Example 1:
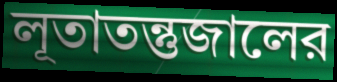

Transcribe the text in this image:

লূতাতন্তুজালের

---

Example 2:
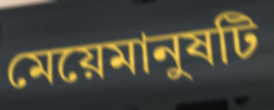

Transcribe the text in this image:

মেয়েমানুষটি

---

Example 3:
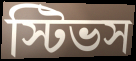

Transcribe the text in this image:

স্টিভস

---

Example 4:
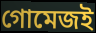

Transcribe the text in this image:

গোমেজই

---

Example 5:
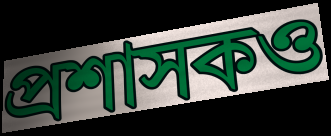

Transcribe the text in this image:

প্রশাসকও